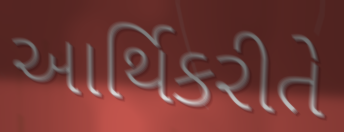
આર્થિકરીતે